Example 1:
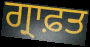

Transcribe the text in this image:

ਗ੍ਰਾਫ਼ਤ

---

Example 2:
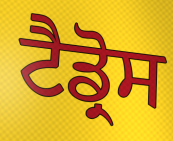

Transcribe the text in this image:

ਟੈਡ੍ਰੋਸ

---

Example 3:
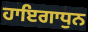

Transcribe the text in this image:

ਹਾਇਗਾਧੁਨ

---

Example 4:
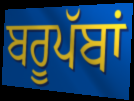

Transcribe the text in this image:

ਬਰੂਪੱਬਾਂ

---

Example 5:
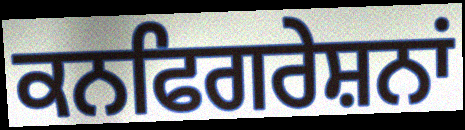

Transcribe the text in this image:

ਕਨਫਿਗਰੇਸ਼ਨਾਂ